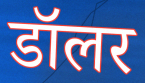
डॉलर